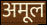
अमूल